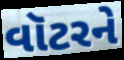
વૉટરને